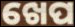
ଖେପ